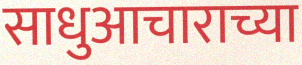
साधुआचाराच्या